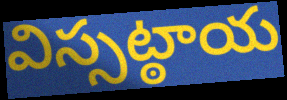
విస్సట్ఠాయ